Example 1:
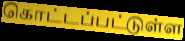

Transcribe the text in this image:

கொட்டப்பட்டுள்ள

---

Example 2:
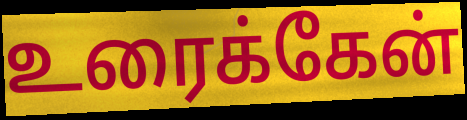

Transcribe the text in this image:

உரைக்கேன்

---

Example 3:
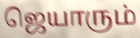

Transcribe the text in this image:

ஜெயாரும்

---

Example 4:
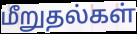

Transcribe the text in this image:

மீறுதல்கள்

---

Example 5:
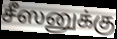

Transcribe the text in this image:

சீஸனுக்கு